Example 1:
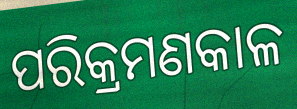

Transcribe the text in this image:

ପରିକ୍ରମଣକାଳ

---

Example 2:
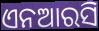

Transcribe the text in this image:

ଏନଆରସି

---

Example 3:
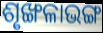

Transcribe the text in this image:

ଶୃଙ୍ଖଳାଭଙ୍ଗ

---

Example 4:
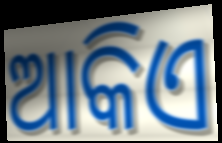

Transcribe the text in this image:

ଆକିଏ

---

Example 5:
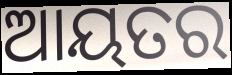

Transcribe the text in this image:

ଆୟତର